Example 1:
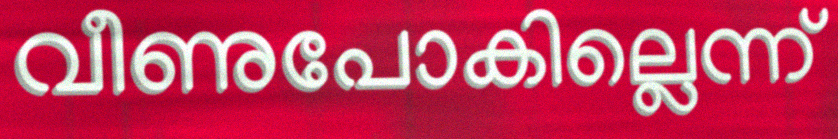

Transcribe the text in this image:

വീണുപോകില്ലെന്ന്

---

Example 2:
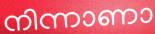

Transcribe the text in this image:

നിന്നാണാ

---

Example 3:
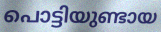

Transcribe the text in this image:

പൊട്ടിയുണ്ടായ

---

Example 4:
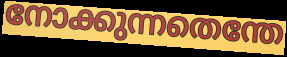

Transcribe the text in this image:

നോക്കുന്നതെന്തേ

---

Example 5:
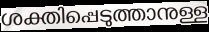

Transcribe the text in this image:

ശക്തിപ്പെടുത്താനുള്ള